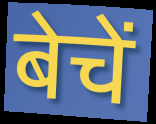
बेचें